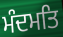
ਮੰਦਮਤਿ